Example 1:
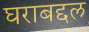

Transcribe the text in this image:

घराबद्दल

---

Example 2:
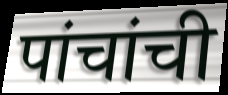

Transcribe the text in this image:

पांचांची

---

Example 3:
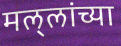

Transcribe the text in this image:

मल्लांच्या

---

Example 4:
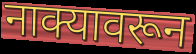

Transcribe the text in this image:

नाक्यावरून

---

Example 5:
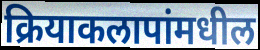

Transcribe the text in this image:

क्रियाकलापांमधील